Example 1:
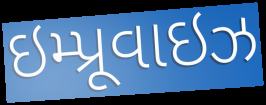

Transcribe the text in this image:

ઇમ્પ્રૂવાઇઝ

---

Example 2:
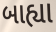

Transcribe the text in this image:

બાહ્યા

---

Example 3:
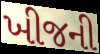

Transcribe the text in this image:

ખીજની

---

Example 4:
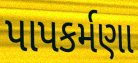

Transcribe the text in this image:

પાપકર્મણા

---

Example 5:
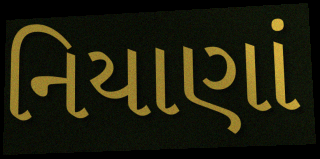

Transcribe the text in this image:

નિયાણાં